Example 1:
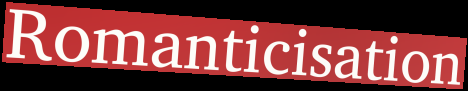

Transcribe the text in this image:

Romanticisation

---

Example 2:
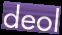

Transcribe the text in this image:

deol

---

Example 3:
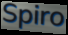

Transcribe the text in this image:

Spiro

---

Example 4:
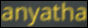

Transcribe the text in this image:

anyatha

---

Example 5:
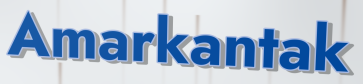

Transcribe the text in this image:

Amarkantak